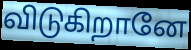
விடுகிறானே